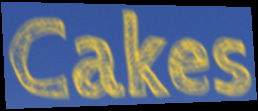
Cakes